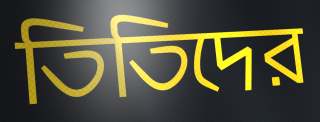
তিতিদের